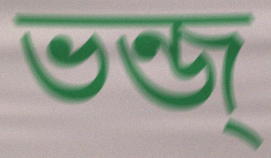
ভন্জ্